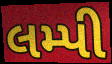
લમ્પી